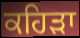
ਕਹਿੜਾ